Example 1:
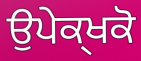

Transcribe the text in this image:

ਉਪੇਕ੍ਖਕੋ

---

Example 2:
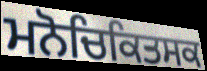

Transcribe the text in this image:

ਮਨੋਚਿਕਿਤਸਕ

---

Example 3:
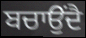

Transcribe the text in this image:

ਬਚਾਉਂਦੈ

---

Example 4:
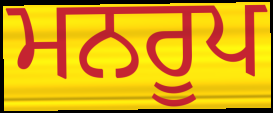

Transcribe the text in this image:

ਮਨਰੂਪ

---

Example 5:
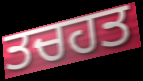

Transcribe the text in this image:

ਤਚਹਤ